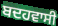
ਬਦਹਵਾਸੀ